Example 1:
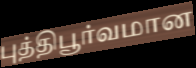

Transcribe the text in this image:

புத்திபூர்வமான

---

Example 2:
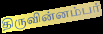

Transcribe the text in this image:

திருவின்னம்பர்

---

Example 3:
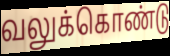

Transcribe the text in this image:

வலுக்கொண்டு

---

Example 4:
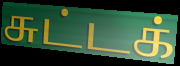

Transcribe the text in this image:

சுட்டக்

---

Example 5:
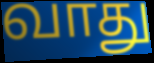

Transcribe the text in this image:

வாது